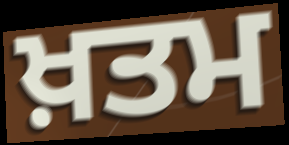
ਖ਼ਤਮ